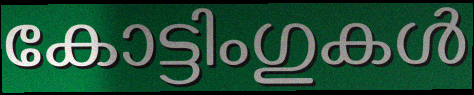
കോട്ടിംഗുകൾ